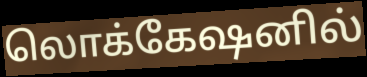
லொக்கேஷனில்